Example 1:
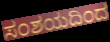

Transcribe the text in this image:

ಸಂಶಯದಿಂದ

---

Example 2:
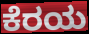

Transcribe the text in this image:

ಕೆರಯ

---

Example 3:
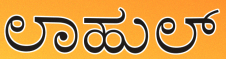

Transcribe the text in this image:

ಲಾಹುಲ್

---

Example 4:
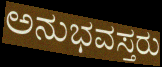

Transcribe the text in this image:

ಅನುಭವಸ್ತರು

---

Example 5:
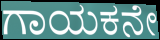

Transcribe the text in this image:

ಗಾಯಕನೇ